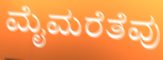
ಮೈಮರೆತೆವು